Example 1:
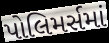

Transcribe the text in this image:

પોલિમર્સમાં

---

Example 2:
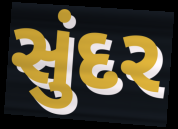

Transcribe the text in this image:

સુંદર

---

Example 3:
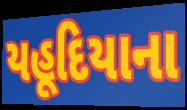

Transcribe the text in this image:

યહૂદિયાના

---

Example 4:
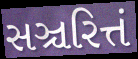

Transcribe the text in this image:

સઞ્ચરિત્તં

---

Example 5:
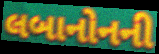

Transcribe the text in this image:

લબાનોનની